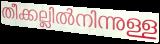
തീക്കല്ലിൽനിന്നുള്ള